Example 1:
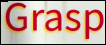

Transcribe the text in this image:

Grasp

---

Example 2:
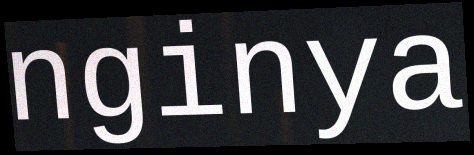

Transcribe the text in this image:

nginya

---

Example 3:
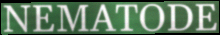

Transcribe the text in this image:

NEMATODE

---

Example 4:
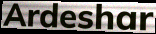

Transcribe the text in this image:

Ardeshar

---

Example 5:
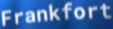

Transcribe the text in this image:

Frankfort